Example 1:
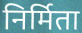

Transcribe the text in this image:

निर्मिता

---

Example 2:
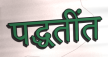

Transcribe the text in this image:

पद्धतींत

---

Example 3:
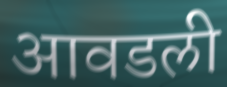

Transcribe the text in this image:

आवडली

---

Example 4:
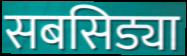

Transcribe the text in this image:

सबसिड्या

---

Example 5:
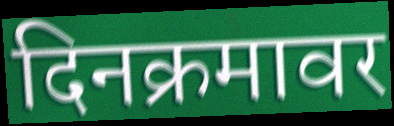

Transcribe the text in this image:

दिनक्रमावर